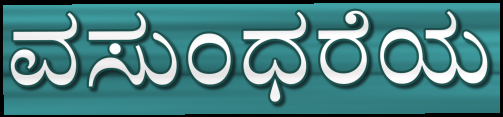
ವಸುಂಧರೆಯ